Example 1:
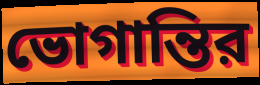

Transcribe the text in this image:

ভোগান্তির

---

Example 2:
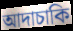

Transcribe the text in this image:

আদাচাকি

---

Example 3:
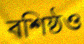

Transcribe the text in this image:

বশিষ্ঠও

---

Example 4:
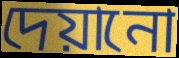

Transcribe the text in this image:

দেয়ানো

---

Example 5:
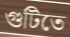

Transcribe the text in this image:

গুটিতে